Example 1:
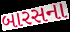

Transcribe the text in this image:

બારસના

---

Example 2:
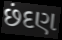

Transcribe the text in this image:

છંદણ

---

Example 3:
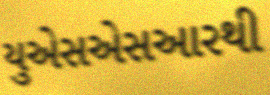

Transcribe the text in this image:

યુએસએસઆરથી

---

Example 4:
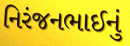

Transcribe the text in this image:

નિરંજનભાઈનું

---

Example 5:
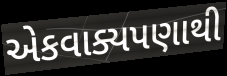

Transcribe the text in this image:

એકવાક્યપણાથી